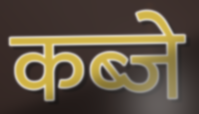
कब्‍जे